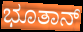
ಭೂತಾನ್